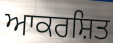
ਆਕਰਸ਼ਿਤ